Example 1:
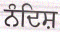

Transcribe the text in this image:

ਨੰਦਿਸ਼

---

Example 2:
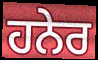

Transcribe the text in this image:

ਹਨੇਰ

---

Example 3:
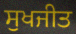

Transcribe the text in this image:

ਸੁਖਜੀਤ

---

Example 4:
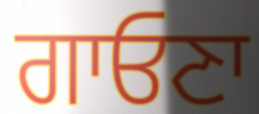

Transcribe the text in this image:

ਗਾਓਣਾ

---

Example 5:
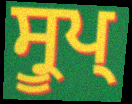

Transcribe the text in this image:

ਸ੍ਰੂਪ੍